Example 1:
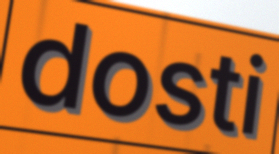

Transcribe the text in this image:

dosti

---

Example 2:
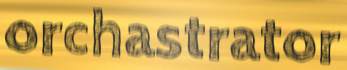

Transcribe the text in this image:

orchastrator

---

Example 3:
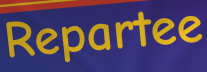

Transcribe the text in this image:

Repartee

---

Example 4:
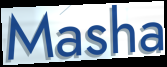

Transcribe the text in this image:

Masha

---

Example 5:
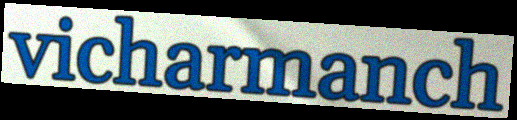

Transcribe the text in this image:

vicharmanch